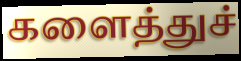
களைத்துச்